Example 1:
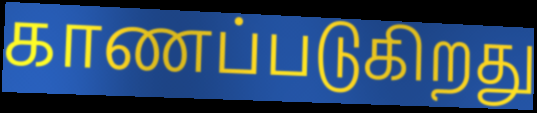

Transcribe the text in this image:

காணப்படுகிறது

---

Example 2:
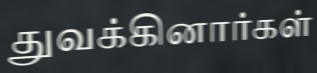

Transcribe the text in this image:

துவக்கினார்கள்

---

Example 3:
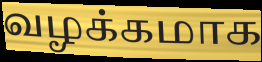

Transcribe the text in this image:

வழக்கமாக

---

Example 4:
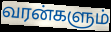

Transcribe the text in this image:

வரன்களும்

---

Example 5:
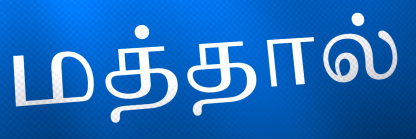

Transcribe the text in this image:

மத்தால்